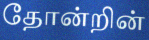
தோன்றின்